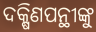
ଦକ୍ଷିଣପନ୍ଥୀଙ୍କୁ